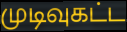
முடிவுகட்ட